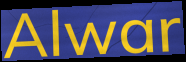
Alwar